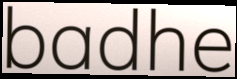
badhe